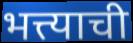
भत्त्याची